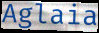
Aglaia